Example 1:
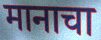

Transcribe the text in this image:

मानाचा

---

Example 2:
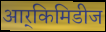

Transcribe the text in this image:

आर्किमिडीज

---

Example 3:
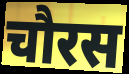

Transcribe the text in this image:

चौरस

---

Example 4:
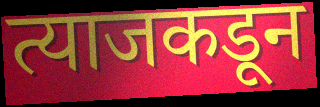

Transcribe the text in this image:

त्याजकडून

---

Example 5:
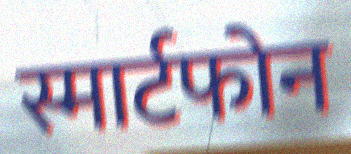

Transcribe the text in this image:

स्मार्टफोन